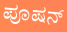
ಪೂಷನ್